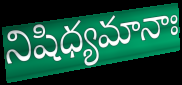
నిషిధ్యమానాః